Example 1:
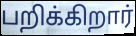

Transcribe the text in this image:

பறிக்கிறார்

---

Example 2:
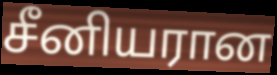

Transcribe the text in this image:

சீனியரான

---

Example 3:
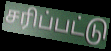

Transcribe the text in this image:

சரிப்பட்டு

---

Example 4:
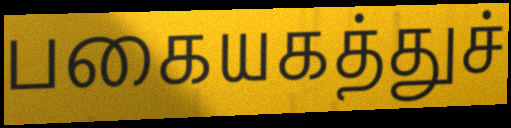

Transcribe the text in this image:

பகையகத்துச்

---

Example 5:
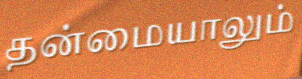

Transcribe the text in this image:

தன்மையாலும்